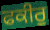
ਫਕੀਰੁ